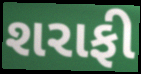
શરાફી